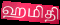
ஹமிதி